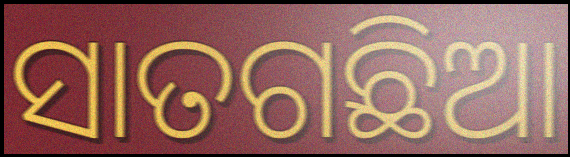
ସାତଗଛିଆ